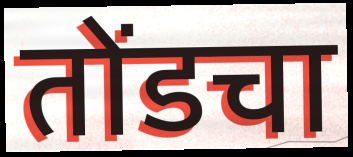
तोंडचा